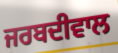
ਜਰਬਦੀਵਾਲ